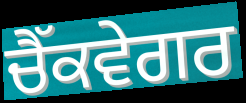
ਚੈੱਕਵੇਗਰ